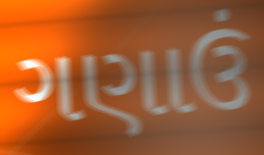
ગણાઉં